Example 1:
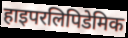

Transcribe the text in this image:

हाइपरलिपिडेमिक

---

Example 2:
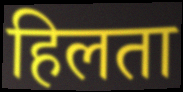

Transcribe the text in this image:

हिलता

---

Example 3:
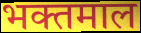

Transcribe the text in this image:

भक्तमाल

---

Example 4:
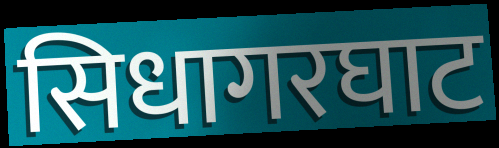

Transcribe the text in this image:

सिधागरघाट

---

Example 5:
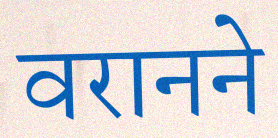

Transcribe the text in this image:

वरानने